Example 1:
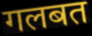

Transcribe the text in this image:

गलबत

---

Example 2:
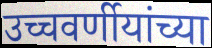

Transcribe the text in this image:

उच्चवर्णीयांच्या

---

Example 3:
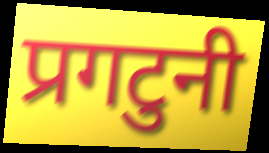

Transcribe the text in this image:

प्रगटुनी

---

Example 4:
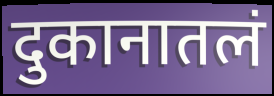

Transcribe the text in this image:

दुकानातलं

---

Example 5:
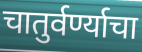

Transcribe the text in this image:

चातुर्वर्ण्याचा